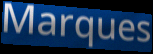
Marques